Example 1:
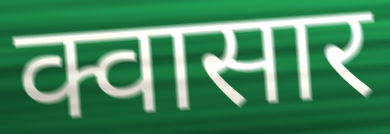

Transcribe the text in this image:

क्वासार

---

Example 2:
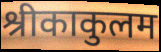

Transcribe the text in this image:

श्रीकाकुलम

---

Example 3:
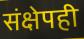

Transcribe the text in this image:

संक्षेपही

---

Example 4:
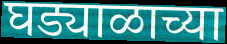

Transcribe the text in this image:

घड्याळाच्या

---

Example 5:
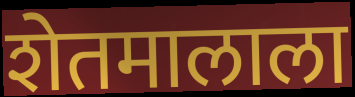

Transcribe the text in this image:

शेतमालाला